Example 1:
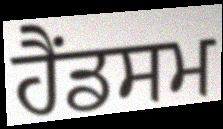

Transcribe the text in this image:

ਹੈਂਡਸਮ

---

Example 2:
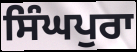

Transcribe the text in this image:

ਸਿੰਘਪੁਰਾ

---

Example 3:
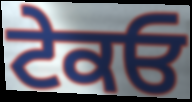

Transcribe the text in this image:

ਟੇਕਓ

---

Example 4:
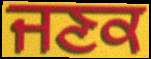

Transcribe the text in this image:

ਜਣਕ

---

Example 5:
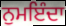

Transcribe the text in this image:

ਨੁਮਇੰਦਾ